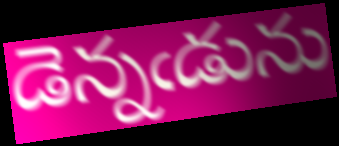
డెన్నఁడును